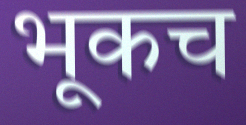
भूकच